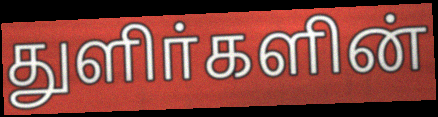
துளிர்களின்